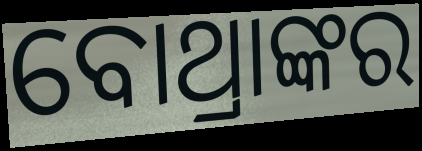
ବୋଥ୍ରାଙ୍କର